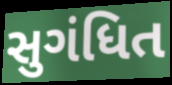
સુગંધિત